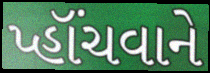
પ્હૉંચવાને